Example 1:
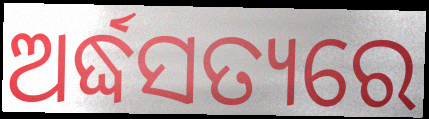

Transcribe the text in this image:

ଅର୍ଦ୍ଧସତ୍ୟରେ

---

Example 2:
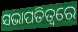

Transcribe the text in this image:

ସଭାପତିତ୍ଵରେ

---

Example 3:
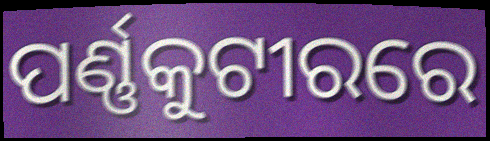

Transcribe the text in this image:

ପର୍ଣ୍ଣକୁଟୀରରେ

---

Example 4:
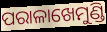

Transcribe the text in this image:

ପରାଳାଖେମୁଣ୍ଡି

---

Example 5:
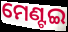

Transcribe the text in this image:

ମେଣ୍ଟଇ